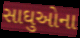
સાઘુઓના